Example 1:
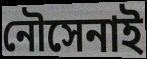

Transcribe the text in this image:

নৌসেনাই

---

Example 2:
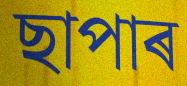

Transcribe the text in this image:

ছাপাৰ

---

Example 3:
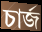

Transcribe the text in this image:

চাৰ্জ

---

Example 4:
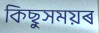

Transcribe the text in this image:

কিছুসময়ৰ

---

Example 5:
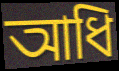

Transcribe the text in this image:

আধি